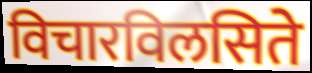
विचारविलसिते